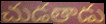
చుడతాడు